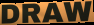
DRAW